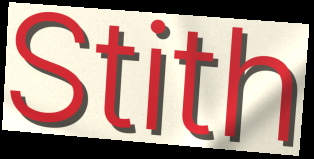
Stith